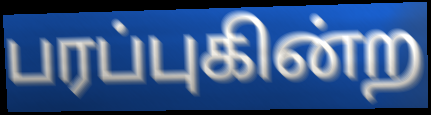
பரப்புகின்ற